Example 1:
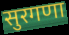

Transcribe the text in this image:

सुरगणा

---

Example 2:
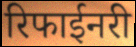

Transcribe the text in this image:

रिफाईनरी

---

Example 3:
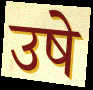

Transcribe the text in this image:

उषे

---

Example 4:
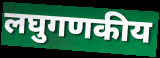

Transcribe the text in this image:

लघुगणकीय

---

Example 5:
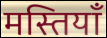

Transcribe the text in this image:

मस्तियाँ